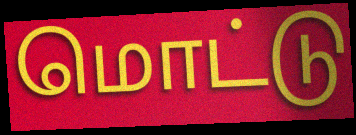
மொட்டு